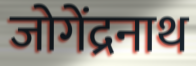
जोगेंद्रनाथ